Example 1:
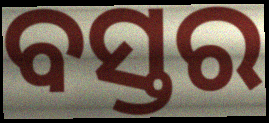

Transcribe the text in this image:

ବସ୍ତର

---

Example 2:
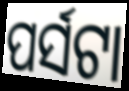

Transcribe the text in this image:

ପର୍ସଟା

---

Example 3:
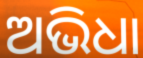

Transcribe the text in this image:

ଅଭିଧା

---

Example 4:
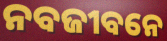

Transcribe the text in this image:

ନବଜୀବନେ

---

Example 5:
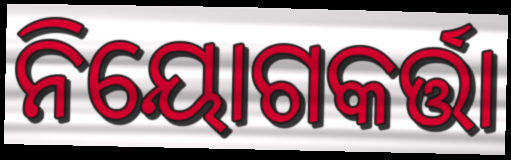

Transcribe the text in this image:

ନିୟୋଗକର୍ତ୍ତା